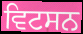
ਵਿਟਸਨ